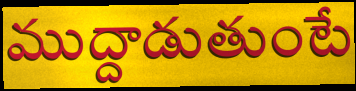
ముద్దాడుతుంటే